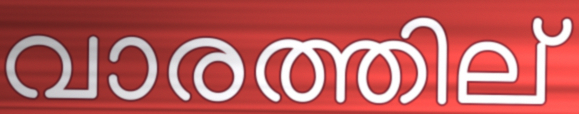
വാരത്തില്